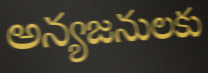
అన్యజనులకు